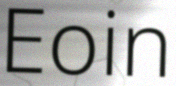
Eoin